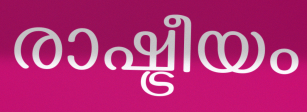
രാഷ്ട്രീയം